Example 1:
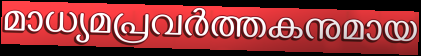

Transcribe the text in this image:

മാധ്യമപ്രവർത്തകനുമായ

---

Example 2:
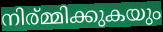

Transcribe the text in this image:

നിര്മ്മിക്കുകയും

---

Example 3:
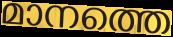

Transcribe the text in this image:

മാനത്തെ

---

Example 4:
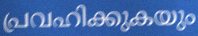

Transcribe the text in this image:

പ്രവഹിക്കുകയും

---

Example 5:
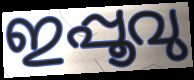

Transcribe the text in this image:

ഇപ്പൂവു